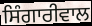
ਸਿੰਗਾਰੀਵਾਲ